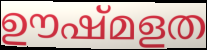
ഊഷ്മളത